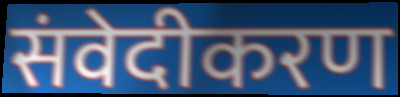
संवेदीकरण